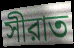
সীরাত